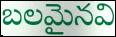
బలమైనవి